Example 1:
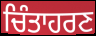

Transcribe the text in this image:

ਚਿੰਤਾਹਰਣ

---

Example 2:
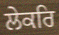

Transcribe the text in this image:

ਲੇਕਰਿ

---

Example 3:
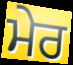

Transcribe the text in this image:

ਮੇਰ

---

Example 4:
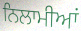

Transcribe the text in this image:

ਨਿਲਾਮੀਆਂ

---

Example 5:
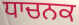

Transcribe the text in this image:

ਧਾਚਨਕ